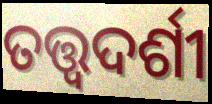
ତତ୍ତ୍ଵଦର୍ଶୀ